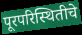
पूरपरिस्थितीचे